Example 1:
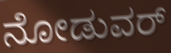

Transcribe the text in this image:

ನೋಡುವರ್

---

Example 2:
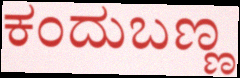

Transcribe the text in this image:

ಕಂದುಬಣ್ಣ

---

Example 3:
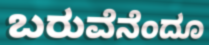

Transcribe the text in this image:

ಬರುವೆನೆಂದೂ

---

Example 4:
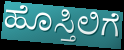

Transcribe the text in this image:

ಹೊಸ್ತಿಲಿಗೆ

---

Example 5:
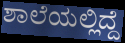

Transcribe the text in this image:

ಶಾಲೆಯಲ್ಲಿದ್ದೆ